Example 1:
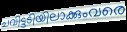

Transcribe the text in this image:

ചവിട്ടടിയിലാക്കുംവരെ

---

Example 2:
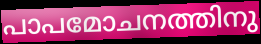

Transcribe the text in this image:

പാപമോചനത്തിനു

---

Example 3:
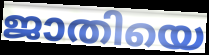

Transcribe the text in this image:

ജാതിയെ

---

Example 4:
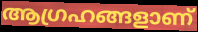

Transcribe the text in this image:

ആഗ്രഹങ്ങളാണ്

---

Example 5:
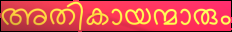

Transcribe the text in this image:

അതികായന്മാരും